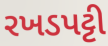
રખડપટ્ટી